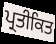
ਪ੍ਰਤੀਕਿਤ